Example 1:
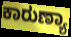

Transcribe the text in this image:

ಕಾರುಣ್ಯಾ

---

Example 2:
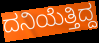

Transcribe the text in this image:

ದನಿಯೆತ್ತಿದ್ದ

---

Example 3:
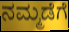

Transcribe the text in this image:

ನಮ್ಮಡೆಗೆ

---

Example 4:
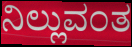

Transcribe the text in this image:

ನಿಲ್ಲುವಂತ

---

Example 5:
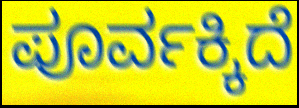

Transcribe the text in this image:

ಪೂರ್ವಕ್ಕಿದೆ